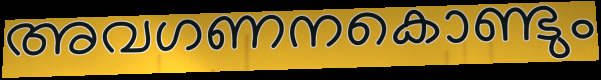
അവഗണനകൊണ്ടും